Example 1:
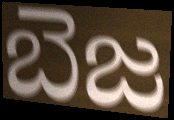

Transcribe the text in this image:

బెజ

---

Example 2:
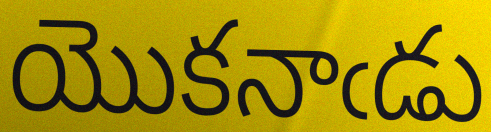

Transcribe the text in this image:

యొకనాఁడు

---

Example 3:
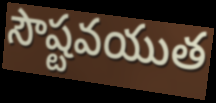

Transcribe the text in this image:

సౌష్టవయుత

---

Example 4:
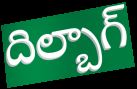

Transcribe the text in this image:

దిల్బాగ్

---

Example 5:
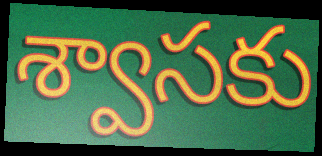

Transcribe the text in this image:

శ్వాసకు